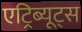
एट्रिब्यूट्स